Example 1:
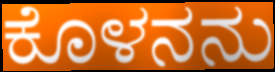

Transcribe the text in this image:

ಕೊಳನನು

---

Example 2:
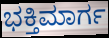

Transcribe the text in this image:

ಭಕ್ತಿಮಾರ್ಗ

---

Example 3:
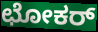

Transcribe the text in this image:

ಛೋಕರ್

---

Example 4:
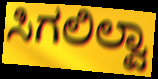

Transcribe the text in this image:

ಸಿಗಲಿಲ್ವಾ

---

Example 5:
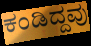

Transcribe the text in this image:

ಕಂಡಿದ್ದವು